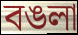
বঙলা